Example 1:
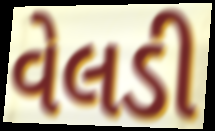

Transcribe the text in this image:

વેલડી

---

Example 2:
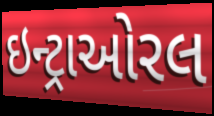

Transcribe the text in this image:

ઇન્ટ્રાઓરલ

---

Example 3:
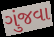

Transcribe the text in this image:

ગુંજવા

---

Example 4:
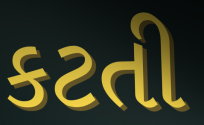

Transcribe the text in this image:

કટતી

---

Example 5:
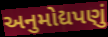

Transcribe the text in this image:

અનુમોદ્યપણું